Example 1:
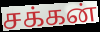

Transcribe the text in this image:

சக்கன்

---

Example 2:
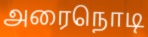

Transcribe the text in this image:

அரைநொடி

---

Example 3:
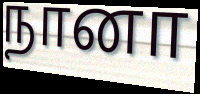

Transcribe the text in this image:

நானா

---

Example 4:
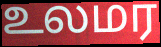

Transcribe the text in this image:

உலமர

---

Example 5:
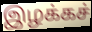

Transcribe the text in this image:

இழக்கச்